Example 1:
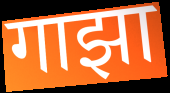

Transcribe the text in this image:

गाझा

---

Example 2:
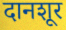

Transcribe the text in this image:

दानशूर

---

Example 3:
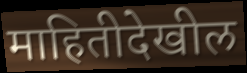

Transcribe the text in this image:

माहितीदेखील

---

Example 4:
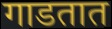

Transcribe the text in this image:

गाडतात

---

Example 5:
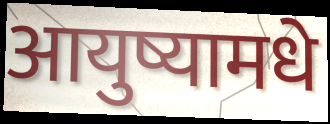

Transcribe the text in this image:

आयुष्यामधे